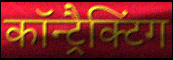
कॉन्ट्रैक्टिंग